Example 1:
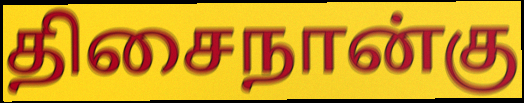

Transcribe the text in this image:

திசைநான்கு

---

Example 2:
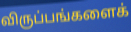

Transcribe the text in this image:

விருப்பங்களைக்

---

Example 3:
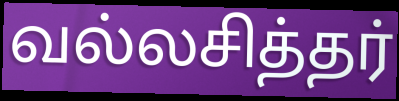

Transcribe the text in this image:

வல்லசித்தர்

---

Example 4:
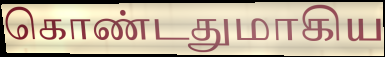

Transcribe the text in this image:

கொண்டதுமாகிய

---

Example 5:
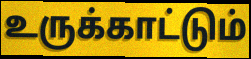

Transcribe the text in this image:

உருக்காட்டும்